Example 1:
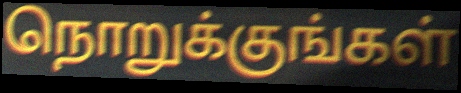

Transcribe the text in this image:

நொறுக்குங்கள்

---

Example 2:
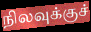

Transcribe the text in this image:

நிலவுக்குச்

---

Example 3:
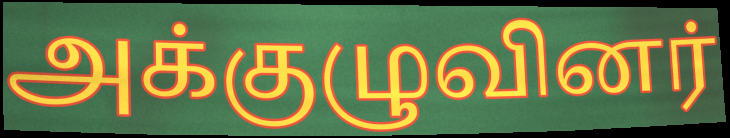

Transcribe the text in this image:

அக்குழுவினர்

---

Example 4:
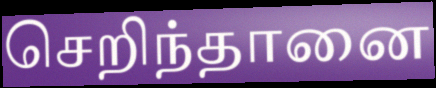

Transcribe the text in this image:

செறிந்தானை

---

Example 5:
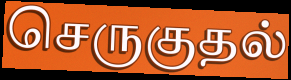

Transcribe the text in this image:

செருகுதல்